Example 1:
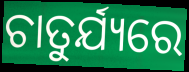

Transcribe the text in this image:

ଚାତୁର୍ଯ୍ୟରେ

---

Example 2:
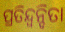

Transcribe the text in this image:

ପ୍ରତିନ୍ଦ୍ବନ୍ଦିତା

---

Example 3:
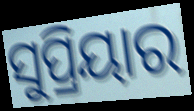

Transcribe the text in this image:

ସୁପ୍ରିୟାର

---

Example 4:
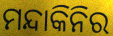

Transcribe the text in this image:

ମନ୍ଦାକିନିର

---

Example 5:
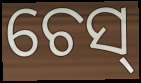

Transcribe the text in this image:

ଚେସ୍